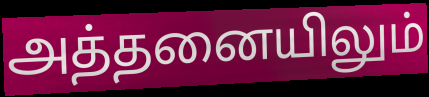
அத்தனையிலும்